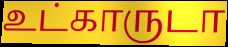
உட்காருடா